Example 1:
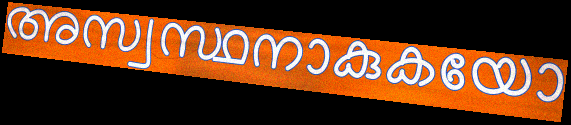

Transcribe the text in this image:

അസ്വസ്ഥനാകുകയോ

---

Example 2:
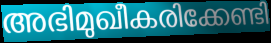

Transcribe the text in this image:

അഭിമുഖീകരിക്കേണ്ടി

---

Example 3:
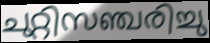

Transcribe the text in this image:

ചുറ്റിസഞ്ചരിച്ചു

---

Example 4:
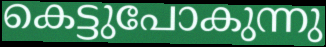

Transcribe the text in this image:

കെട്ടുപോകുന്നു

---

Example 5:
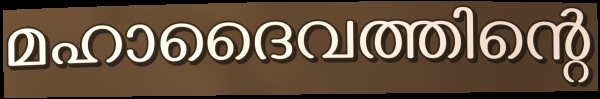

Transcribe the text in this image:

മഹാദൈവത്തിന്റെ